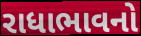
રાધાભાવનો